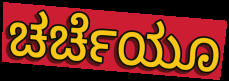
ಚರ್ಚೆಯೂ